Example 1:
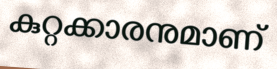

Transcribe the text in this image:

കുറ്റക്കാരനുമാണ്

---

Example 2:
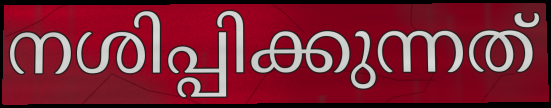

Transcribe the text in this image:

നശിപ്പിക്കുന്നത്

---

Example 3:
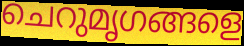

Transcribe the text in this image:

ചെറുമൃഗങ്ങളെ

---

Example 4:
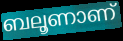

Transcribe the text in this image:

ബലൂണാണ്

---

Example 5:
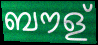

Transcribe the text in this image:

ബൗള്